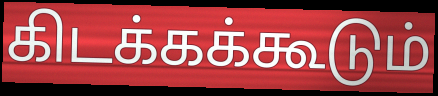
கிடக்கக்கூடும்